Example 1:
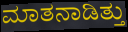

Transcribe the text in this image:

ಮಾತನಾಡಿತ್ತು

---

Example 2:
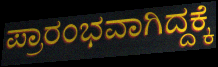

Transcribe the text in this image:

ಪ್ರಾರಂಭವಾಗಿದ್ದಕ್ಕೆ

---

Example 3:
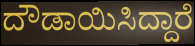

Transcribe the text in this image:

ದೌಡಾಯಿಸಿದ್ದಾರೆ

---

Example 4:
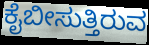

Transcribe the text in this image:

ಕೈಬೀಸುತ್ತಿರುವ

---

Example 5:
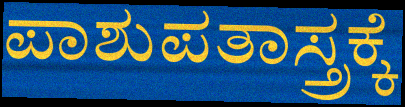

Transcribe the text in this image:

ಪಾಶುಪತಾಸ್ತ್ರಕ್ಕೆ